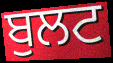
ਬੁਲਟ